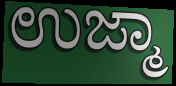
ಉಜ್ಮಾ